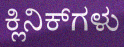
ಕ್ಲಿನಿಕ್‌ಗಳು